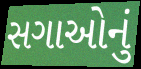
સગાઓનું